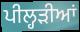
ਪੀਲ੍ਹੜੀਆਂ